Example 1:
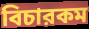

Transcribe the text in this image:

বিচারকম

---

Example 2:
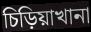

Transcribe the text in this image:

চিড়িয়াখানা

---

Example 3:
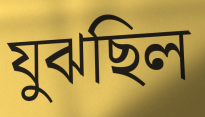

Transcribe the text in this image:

যুঝছিল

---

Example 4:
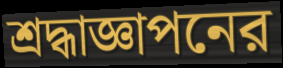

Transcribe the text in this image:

শ্রদ্ধাজ্ঞাপনের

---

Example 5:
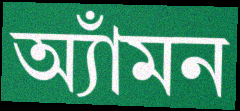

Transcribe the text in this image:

অ্যাঁমন